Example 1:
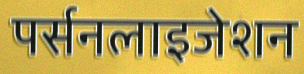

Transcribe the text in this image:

पर्सनलाइजेशन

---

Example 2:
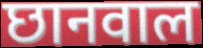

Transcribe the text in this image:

छानवाल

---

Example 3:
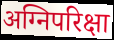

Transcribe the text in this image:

अग्निपरिक्षा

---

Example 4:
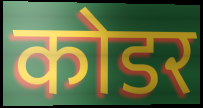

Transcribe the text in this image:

कोडर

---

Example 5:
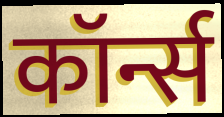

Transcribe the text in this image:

कॉर्न्स